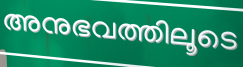
അനുഭവത്തിലൂടെ